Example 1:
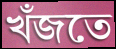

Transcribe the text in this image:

খঁজতে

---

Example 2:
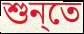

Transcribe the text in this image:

শুন্‌তে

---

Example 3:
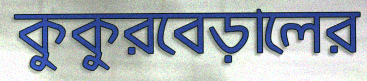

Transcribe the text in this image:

কুকুরবেড়ালের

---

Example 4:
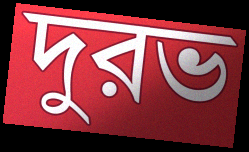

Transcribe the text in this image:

দুরভ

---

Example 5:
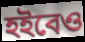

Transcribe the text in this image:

হইবেও